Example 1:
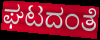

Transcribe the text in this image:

ಘಟದಂತೆ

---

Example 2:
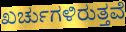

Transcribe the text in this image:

ಖರ್ಚುಗಳಿರುತ್ತವೆ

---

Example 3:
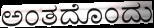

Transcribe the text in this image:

ಅಂತದೊಂದು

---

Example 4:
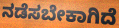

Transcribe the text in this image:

ನಡೆಸಬೇಕಾಗಿದೆ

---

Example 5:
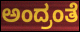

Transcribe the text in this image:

ಅಂದ್ರಂತೆ